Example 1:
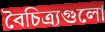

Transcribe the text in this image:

বৈচিত্র্যগুলো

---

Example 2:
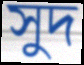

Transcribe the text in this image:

সুদ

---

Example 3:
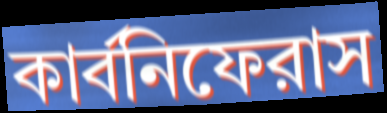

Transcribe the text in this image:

কার্বনিফেরাস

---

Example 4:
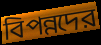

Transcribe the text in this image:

বিপন্নদের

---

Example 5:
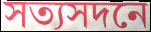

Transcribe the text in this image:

সত্যসদনে